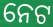
ନେଟ